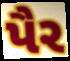
પૈર